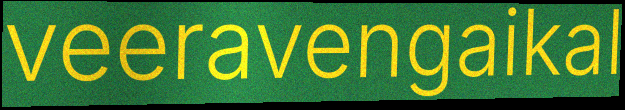
veeravengaikal